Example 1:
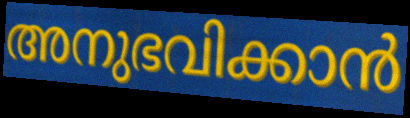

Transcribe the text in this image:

അനുഭവിക്കാൻ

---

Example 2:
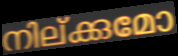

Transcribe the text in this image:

നില്ക്കുമോ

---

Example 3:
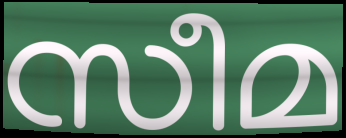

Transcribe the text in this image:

സീമ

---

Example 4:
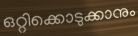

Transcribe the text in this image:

ഒറ്റിക്കൊടുക്കാനും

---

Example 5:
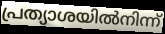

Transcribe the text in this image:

പ്രത്യാശയിൽനിന്ന്